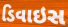
ડિવાઇસ